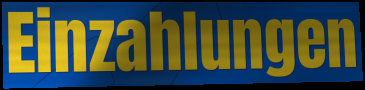
Einzahlungen